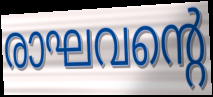
രാഘവന്റെ